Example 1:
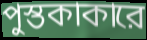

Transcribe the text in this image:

পুস্তকাকারে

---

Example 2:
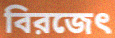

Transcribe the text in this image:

বিরজেৎ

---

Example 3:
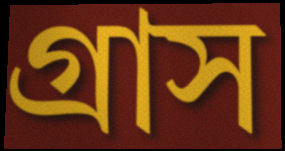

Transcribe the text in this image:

গ্রাস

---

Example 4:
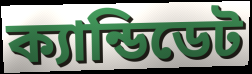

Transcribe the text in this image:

ক্যান্ডিডেট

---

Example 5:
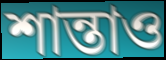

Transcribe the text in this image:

শান্তাও